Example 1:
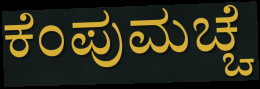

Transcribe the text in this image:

ಕೆಂಪುಮಚ್ಚೆ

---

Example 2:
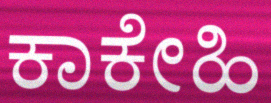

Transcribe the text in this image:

ಕಾಕೇಹಿ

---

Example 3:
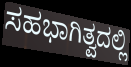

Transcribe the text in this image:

ಸಹಭಾಗಿತ್ವದಲ್ಲಿ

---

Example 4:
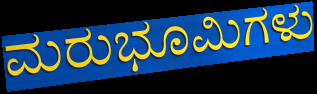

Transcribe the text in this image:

ಮರುಭೂಮಿಗಳು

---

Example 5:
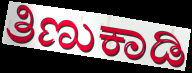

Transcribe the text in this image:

ತಿಣುಕಾಡಿ